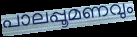
പാലപ്പൂമണവും